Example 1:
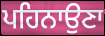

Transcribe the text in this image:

ਪਹਿਨਾਉਣਾ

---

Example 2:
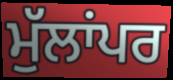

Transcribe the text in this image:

ਮੁੱਲਾਂਪਰ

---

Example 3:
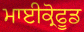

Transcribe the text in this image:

ਮਾਈਕ੍ਰੋਫੂਡ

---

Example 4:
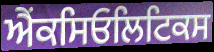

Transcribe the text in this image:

ਐਂਕਸਿਓਲਿਟਿਕਸ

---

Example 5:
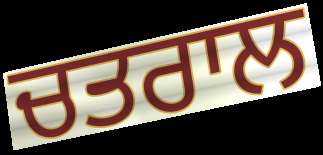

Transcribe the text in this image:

ਚਤਰਾਲ